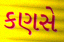
કણસે